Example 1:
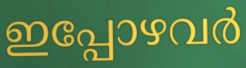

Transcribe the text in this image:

ഇപ്പോഴവർ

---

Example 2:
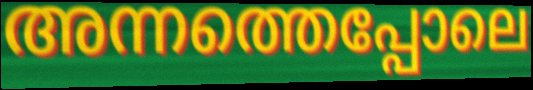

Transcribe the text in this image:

അന്നത്തെപ്പോലെ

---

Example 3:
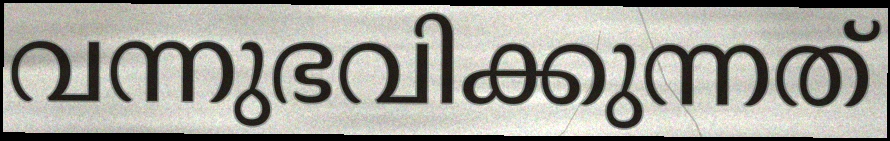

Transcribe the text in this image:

വന്നുഭവിക്കുന്നത്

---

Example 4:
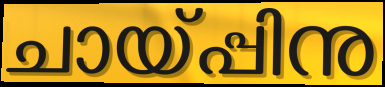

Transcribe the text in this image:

ചായ്പ്പിനു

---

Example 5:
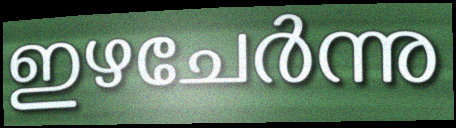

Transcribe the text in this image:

ഇഴചേർന്നു